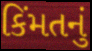
કિંમતનું